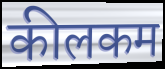
कीलकम